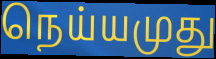
நெய்யமுது